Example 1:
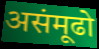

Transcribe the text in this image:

असंमूढो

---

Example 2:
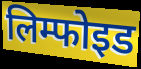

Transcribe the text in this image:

लिम्फोइड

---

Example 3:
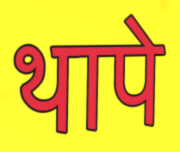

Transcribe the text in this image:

थापे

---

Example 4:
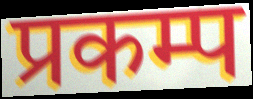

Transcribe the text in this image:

प्रकम्प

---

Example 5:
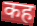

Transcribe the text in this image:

कह